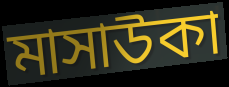
মাসাউকা